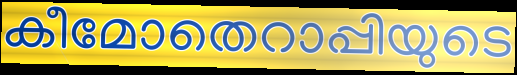
കീമോതെറാപ്പിയുടെ